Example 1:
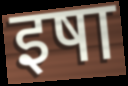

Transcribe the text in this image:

इषा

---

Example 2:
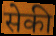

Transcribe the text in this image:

सेकी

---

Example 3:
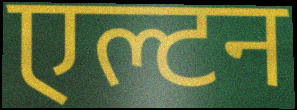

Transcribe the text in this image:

एल्टन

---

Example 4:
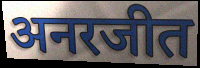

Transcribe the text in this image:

अनरजीत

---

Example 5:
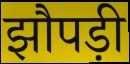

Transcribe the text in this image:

झौपड़ी